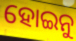
ହୋଇନୁ